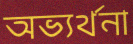
অভ্যৰ্থনা